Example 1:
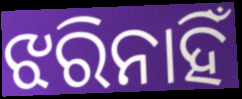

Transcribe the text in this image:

ଝରିନାହିଁ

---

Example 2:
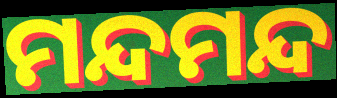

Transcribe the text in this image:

ମନ୍ଦମନ୍ଦ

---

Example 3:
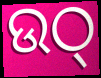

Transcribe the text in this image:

ଉଠ୍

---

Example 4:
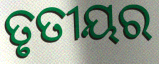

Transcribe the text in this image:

ତୃତୀୟର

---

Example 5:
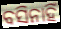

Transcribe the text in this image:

ବସିନାହିଁ